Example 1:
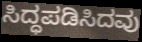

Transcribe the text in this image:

ಸಿದ್ಧಪಡಿಸಿದವು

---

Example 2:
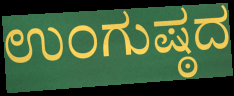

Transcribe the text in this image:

ಉಂಗುಷ್ಠದ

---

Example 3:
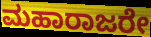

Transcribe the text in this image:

ಮಹಾರಾಜರೇ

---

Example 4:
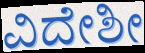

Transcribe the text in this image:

ವಿದೇಶೀ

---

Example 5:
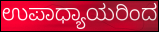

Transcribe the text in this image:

ಉಪಾಧ್ಯಾಯರಿಂದ